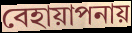
বেহায়াপনায়